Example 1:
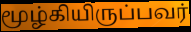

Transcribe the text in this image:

மூழ்கியிருப்பவர்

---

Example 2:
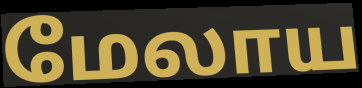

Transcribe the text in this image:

மேலாய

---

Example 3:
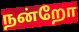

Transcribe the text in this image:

நன்றோ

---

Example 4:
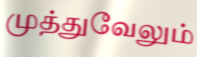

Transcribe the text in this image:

முத்துவேலும்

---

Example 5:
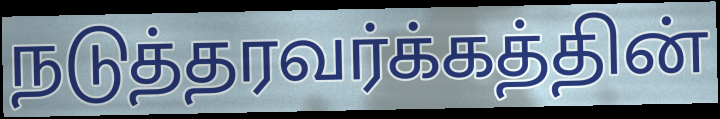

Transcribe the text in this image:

நடுத்தரவர்க்கத்தின்